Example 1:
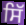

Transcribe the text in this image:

ਸਿੱ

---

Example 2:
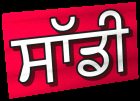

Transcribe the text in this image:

ਸਾੱਡੀ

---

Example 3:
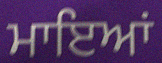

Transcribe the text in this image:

ਮਾਇਆਂ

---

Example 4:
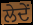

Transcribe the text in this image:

ਲੇਦੇਂ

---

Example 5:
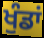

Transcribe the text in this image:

ਖੁੰਡਾਂ